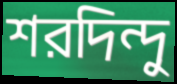
শরদিন্দু